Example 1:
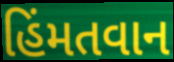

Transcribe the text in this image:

હિંમતવાન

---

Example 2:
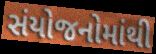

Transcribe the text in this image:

સંયોજનોમાંથી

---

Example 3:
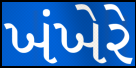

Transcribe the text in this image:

ખંખેરે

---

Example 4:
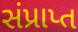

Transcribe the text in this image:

સંપ્રાપ્ત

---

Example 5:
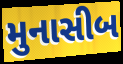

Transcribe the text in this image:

મુનાસીબ